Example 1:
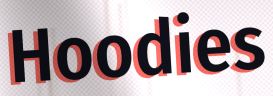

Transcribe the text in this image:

Hoodies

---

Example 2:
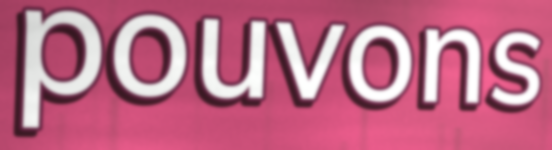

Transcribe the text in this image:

pouvons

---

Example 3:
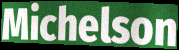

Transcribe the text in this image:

Michelson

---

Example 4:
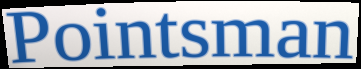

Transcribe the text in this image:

Pointsman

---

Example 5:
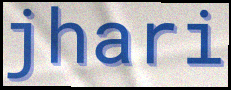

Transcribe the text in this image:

jhari